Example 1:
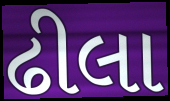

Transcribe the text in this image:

ઢીલા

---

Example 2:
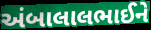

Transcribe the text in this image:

અંબાલાલભાઈને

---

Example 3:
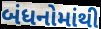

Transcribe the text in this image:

બંધનોમાંથી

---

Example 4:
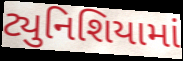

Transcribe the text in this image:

ટ્યુનિશિયામાં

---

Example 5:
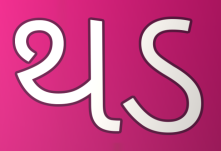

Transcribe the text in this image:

થડ